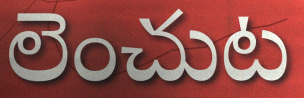
లెంచుట